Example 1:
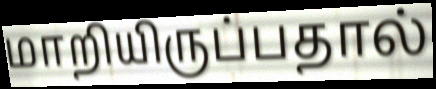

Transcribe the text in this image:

மாறியிருப்பதால்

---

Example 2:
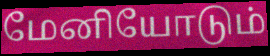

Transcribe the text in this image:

மேனியோடும்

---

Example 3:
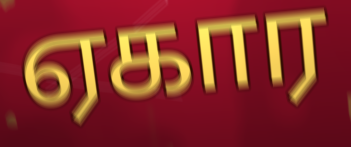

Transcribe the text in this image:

ஏகார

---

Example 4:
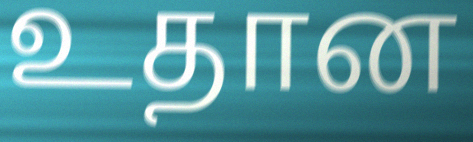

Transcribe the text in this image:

உதான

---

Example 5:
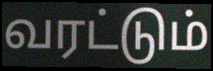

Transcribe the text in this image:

வரட்டும்